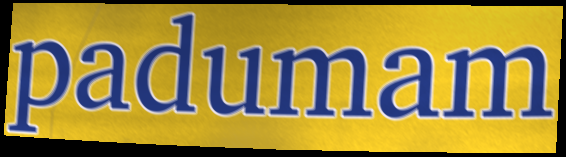
padumam